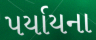
પર્યાયના